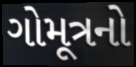
ગોમૂત્રનો